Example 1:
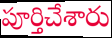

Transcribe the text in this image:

పూర్తిచేశారు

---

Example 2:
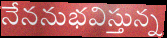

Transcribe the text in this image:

నేననుభవిస్తున్న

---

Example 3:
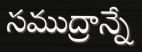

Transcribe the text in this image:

సముద్రాన్నే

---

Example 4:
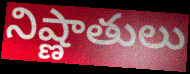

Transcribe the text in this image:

నిష్ణాతులు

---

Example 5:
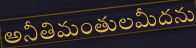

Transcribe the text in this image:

అనీతిమంతులమీదను